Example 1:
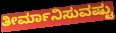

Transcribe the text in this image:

ತೀರ್ಮಾನಿಸುವಷ್ಟು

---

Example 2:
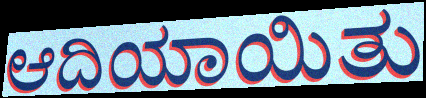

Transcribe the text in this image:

ಆದಿಯಾಯಿತು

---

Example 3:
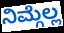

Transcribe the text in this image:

ನಿಮ್ಗೆಲ್ಲ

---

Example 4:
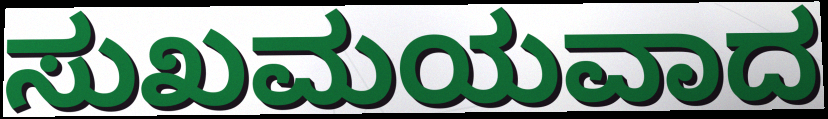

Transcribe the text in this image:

ಸುಖಮಯವಾದ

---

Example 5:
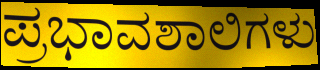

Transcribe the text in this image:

ಪ್ರಭಾವಶಾಲಿಗಳು